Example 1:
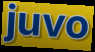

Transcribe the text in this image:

juvo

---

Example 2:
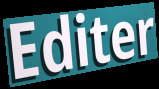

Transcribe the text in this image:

Editer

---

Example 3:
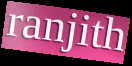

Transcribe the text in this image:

ranjith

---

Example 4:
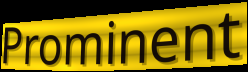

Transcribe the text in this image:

Prominent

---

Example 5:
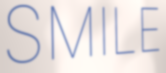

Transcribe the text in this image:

SMILE